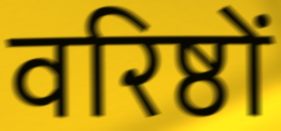
वरिष्ठों